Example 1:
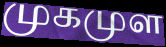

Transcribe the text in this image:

முகமுள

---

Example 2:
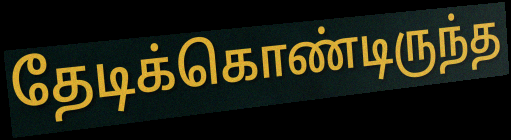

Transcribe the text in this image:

தேடிக்கொண்டிருந்த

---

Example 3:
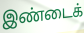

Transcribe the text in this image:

இண்டைக்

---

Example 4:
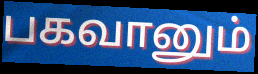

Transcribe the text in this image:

பகவானும்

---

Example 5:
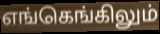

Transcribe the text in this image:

எங்கெங்கிலும்